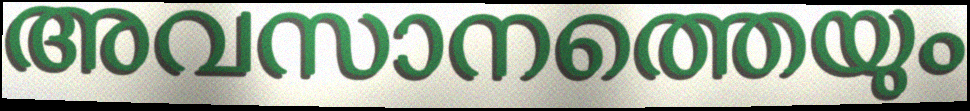
അവസാനത്തെയും